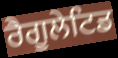
ਰੈਗੂਲੇਟਿਡ